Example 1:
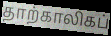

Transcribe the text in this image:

தாற்காலிகப்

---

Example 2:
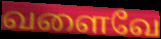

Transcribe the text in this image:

வளைவே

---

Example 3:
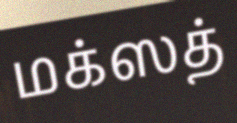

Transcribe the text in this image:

மக்ஸத்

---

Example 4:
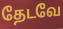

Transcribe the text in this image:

தேடவே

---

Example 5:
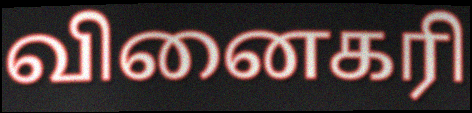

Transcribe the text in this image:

வினைகரி